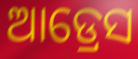
ଆଡ୍ରେସ